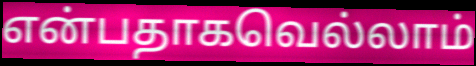
என்பதாகவெல்லாம்